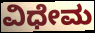
ವಿಧೇಮ